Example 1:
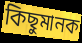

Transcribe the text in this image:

কিছুমানক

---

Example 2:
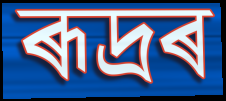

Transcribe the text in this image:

ৰূদ্ৰৰ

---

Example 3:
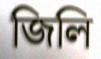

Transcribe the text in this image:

জিলি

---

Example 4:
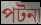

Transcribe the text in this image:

পটনা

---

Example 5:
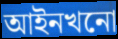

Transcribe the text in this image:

আইনখনো